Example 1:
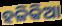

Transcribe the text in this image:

ହଳିକିଆ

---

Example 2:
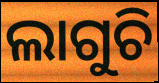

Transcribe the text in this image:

ଲାଗୁଚି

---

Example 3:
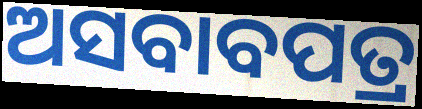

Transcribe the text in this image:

ଅସବାବପତ୍ର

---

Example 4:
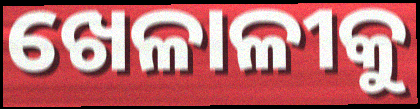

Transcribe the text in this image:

ଖେଳାଳୀକୁ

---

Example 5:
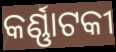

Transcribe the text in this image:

କର୍ଣ୍ଣାଟକୀ